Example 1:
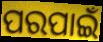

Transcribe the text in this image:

ପରପାଇଁ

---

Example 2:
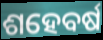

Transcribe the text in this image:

ଶହେବର୍ଷ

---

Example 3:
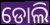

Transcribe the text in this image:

ଡୋଲି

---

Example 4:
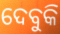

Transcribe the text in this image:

ଦେବୁକି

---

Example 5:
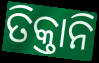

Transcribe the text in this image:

ତିକ୍ତାନି